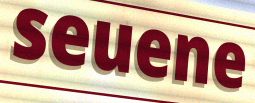
seuene